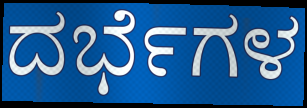
ದರ್ಭೆಗಳ